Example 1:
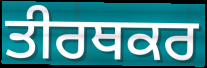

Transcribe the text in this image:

ਤੀਰਥਕਰ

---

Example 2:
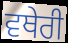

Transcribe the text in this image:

ਵਥੇਰੀ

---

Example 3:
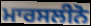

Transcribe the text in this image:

ਮਾਰਸਲੀਨੋ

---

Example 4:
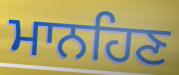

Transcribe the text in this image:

ਮਾਨਹਿਣ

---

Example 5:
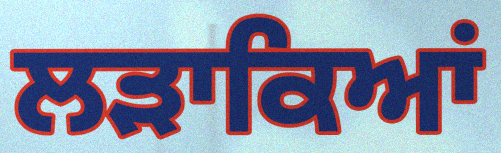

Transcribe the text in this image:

ਲੜਾਕਿਆਂ